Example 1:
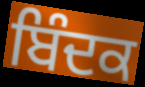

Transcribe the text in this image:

ਬਿੰਦਕ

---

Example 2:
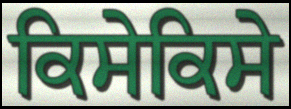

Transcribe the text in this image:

ਕਿਸੇਕਿਸੇ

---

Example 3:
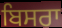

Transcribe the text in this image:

ਬਿਸਰਾ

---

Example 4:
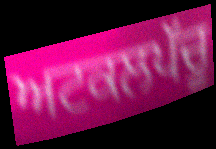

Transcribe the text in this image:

ਅਟਕਲਪੱਚੂ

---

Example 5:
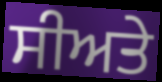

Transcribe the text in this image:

ਸੀਅਤੇ